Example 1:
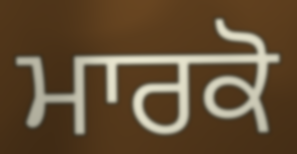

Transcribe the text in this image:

ਮਾਰਕੋ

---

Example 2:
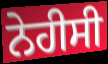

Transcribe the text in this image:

ਨੇਹੀਸੀ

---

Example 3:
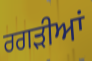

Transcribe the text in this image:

ਰਗੜੀਆਂ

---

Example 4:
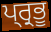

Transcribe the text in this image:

ਪ੍ਰ੍ਰਭੂ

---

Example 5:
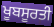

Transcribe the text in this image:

ਖੂਬਸੂਰਤੀ